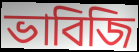
ভাবিজি